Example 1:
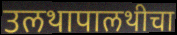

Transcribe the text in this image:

उलथापालथीचा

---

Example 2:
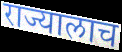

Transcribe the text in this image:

राज्यालाच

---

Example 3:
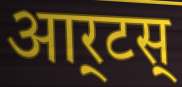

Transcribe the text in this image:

आर्टस्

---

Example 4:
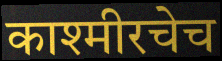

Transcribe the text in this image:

काश्मीरचेच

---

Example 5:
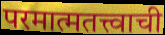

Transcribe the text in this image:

परमात्मतत्त्वाची